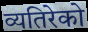
व्यतिरेको